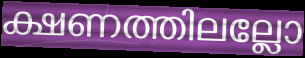
ക്ഷണത്തിലല്ലോ